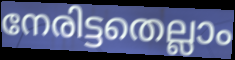
നേരിട്ടതെല്ലാം